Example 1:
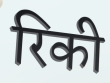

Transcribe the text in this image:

रिकी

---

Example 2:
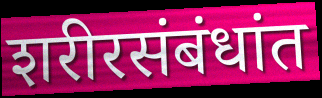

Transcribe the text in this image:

शरीरसंबंधांत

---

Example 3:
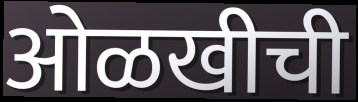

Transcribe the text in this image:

ओळखीची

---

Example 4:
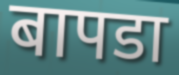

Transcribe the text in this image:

बापडा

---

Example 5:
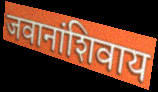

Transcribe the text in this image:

जवानांशिवाय